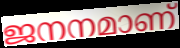
ജനനമാണ്